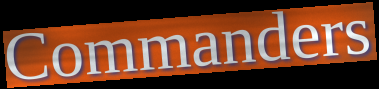
Commanders